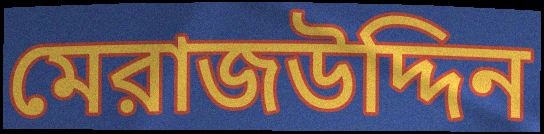
মেরাজউদ্দিন